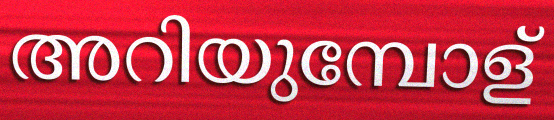
അറിയുമ്പോള്